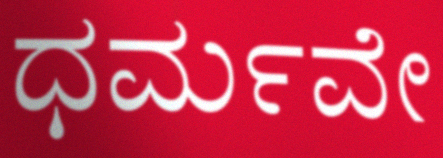
ಧರ್ಮವೇ